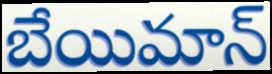
బేయిమాన్